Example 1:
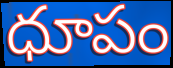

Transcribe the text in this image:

ధూపం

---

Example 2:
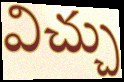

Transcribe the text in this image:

విచ్చు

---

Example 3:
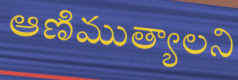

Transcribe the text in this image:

ఆణిముత్యాలని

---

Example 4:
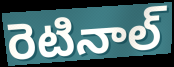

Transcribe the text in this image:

రెటినాల్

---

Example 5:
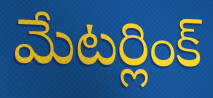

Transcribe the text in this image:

మేటర్లింక్